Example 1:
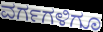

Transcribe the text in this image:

ವರ್ಗಗಳಿಗೂ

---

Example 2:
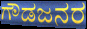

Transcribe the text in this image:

ಗೌಡಜನರ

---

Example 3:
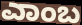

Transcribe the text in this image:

ಎಾಂಬ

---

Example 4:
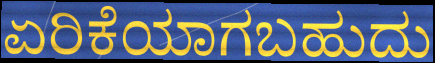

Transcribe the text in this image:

ಏರಿಕೆಯಾಗಬಹುದು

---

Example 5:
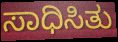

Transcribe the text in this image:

ಸಾಧಿಸಿತು